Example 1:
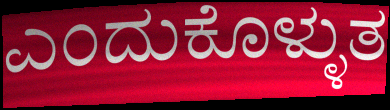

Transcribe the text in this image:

ಎಂದುಕೊಳ್ಳುತ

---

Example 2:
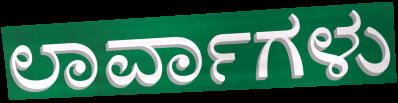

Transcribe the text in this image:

ಲಾರ್ವಾಗಳು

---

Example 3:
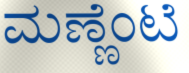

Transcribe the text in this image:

ಮಣ್ಣೆಂಟೆ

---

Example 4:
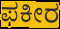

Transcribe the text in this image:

ಫಕೀರ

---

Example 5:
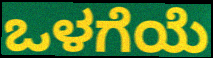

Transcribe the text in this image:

ಒಳಗೆಯೆ